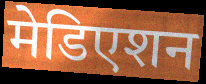
मेडिएशन